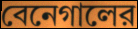
বেনেগালের